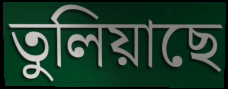
তুলিয়াছে